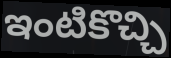
ఇంటికొచ్చి